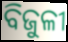
ବିଜୁଳୀ